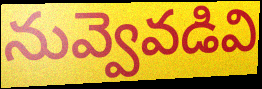
నువ్వెవడివి